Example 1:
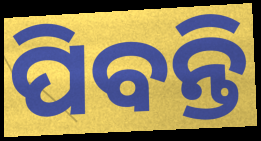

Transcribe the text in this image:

ପିବନ୍ତି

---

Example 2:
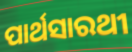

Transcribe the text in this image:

ପାର୍ଥସାରଥୀ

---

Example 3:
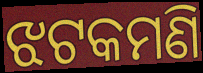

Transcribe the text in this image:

ଝଟକମଣି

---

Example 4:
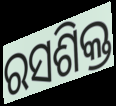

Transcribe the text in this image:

ରସଶିକ୍ତ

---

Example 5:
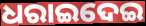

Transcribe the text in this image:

ଧରାଇଦେଇ